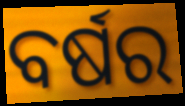
ବର୍ଷର